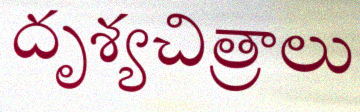
దృశ్యచిత్రాలు